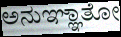
ಅನುಞ್ಞಾತೋ